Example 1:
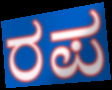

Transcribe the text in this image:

ರಪ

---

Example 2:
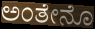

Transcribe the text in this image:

ಅಂತೇನೊ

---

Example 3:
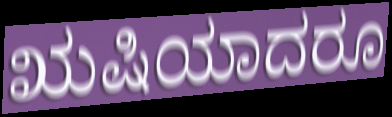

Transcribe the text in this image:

ಋಷಿಯಾದರೂ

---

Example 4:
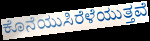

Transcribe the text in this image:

ಕೊನೆಯುಸಿರೆಳೆಯುತ್ತವೆ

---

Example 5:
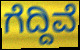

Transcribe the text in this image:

ಗೆದ್ದಿವೆ